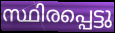
സ്ഥിരപ്പെട്ടു